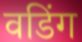
वडिंग